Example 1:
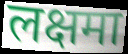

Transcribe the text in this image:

लक्षमा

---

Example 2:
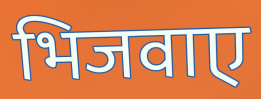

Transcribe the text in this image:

भिजवाए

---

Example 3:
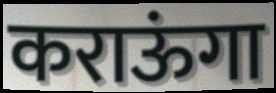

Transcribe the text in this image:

कराऊंगा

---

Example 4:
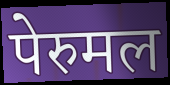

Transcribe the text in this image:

पेरुमल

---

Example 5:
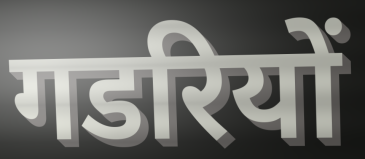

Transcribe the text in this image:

गडरियों